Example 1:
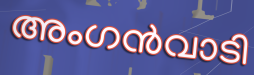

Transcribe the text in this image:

അംഗൻവാടി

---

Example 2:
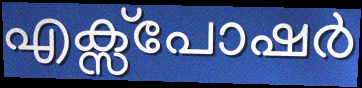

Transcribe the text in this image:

എക്സ്പോഷർ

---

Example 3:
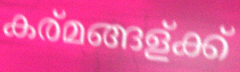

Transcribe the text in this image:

കര്മങ്ങള്ക്ക്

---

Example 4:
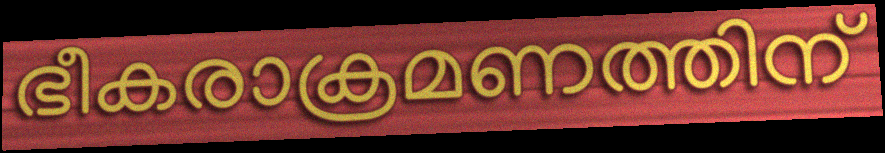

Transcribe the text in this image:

ഭീകരാക്രമണത്തിന്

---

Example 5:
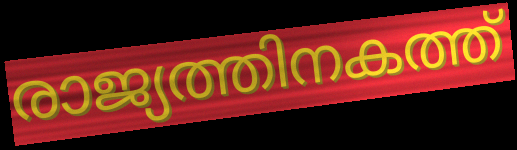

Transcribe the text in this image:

രാജ്യത്തിനകത്ത്